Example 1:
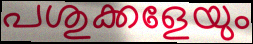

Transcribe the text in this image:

പശുക്കളേയും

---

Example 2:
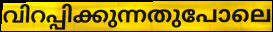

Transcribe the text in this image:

വിറപ്പിക്കുന്നതുപോലെ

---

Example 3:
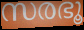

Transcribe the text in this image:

സരഭൂ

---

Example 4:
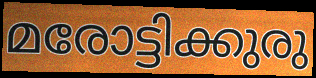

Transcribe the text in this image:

മരോട്ടിക്കുരു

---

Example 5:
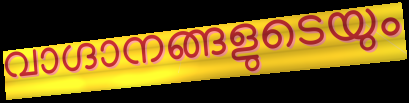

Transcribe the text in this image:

വാഗ്ദാനങ്ങളുടെയും